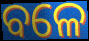
ବଳେ